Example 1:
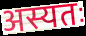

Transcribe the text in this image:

अस्यतः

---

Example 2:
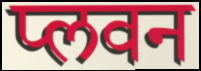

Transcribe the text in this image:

प्लवन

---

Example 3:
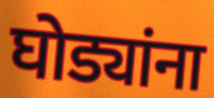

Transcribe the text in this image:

घोड्यांना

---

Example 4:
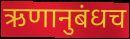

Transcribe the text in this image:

ऋणानुबंधच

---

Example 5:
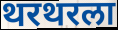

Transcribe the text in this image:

थरथरला